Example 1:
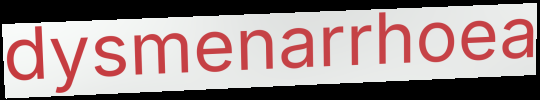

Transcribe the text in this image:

dysmenarrhoea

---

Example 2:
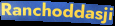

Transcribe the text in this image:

Ranchoddasji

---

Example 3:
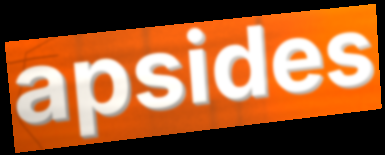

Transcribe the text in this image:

apsides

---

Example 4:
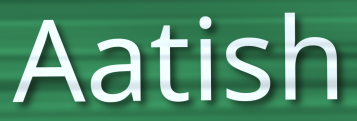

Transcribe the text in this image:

Aatish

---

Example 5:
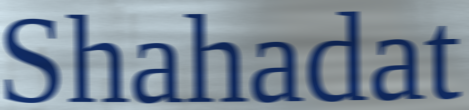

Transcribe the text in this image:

Shahadat